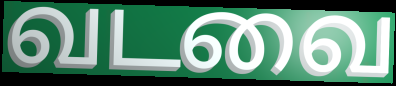
வடவை